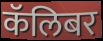
कॅलिबर